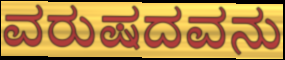
ವರುಷದವನು